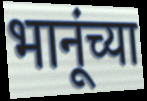
भानूंच्या